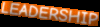
LEADERSHIP